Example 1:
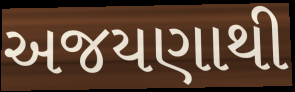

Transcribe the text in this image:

અજયણાથી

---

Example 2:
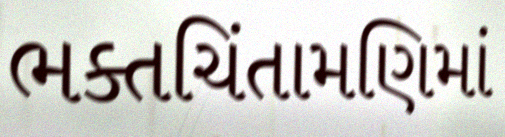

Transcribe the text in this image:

ભક્તચિંતામણિમાં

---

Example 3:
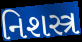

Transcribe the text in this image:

નિશસ્ત્ર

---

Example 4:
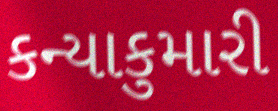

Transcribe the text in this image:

કન્યાકુમારી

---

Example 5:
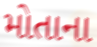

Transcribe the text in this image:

મોતાના